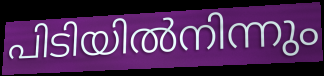
പിടിയിൽനിന്നും